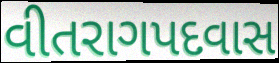
વીતરાગપદવાસ